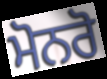
ਮੋਨਰੋ